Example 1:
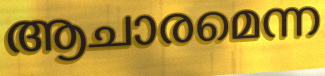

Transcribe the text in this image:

ആചാരമെന്ന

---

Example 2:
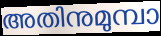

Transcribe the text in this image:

അതിനുമുമ്പാ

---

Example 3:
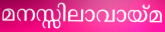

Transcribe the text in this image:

മനസ്സിലാവായ്മ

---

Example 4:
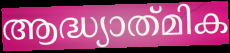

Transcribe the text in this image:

ആദ്ധ്യാത്‌മിക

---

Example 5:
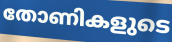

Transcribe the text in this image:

തോണികളുടെ